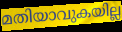
മതിയാവുകയില്ല